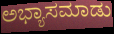
ಅಭ್ಯಾಸಮಾಡು